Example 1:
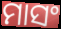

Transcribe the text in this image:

ମାସଂ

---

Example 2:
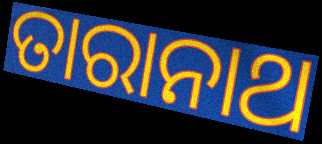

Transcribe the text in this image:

ତାରାନାଥ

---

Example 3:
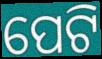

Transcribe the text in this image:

ପେଟି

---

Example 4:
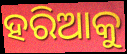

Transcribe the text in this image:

ହରିଆକୁ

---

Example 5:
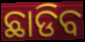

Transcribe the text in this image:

ଛାଡିବ